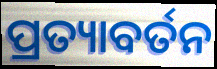
ପ୍ରତ୍ୟାବର୍ତନ